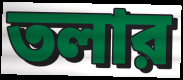
তলার